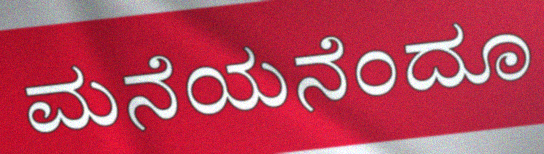
ಮನೆಯನೆಂದೂ